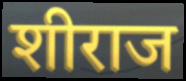
शीराज